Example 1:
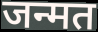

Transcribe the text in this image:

जन्मत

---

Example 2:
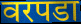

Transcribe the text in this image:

वरपडा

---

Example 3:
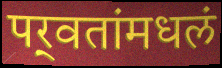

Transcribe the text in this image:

पर्वतांमधलं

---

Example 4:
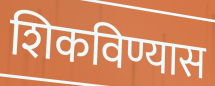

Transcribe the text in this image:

शिकविण्यास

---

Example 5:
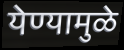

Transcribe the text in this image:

येण्यामुळे